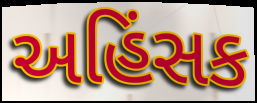
અહિંસક